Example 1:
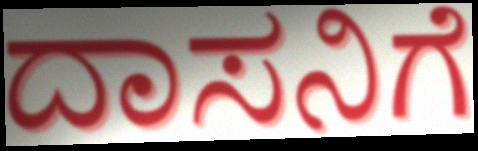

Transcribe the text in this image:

ದಾಸನಿಗೆ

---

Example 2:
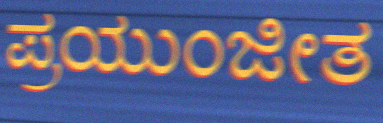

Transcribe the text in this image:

ಪ್ರಯುಂಜೀತ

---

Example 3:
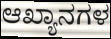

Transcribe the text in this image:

ಆಖ್ಯಾನಗಳ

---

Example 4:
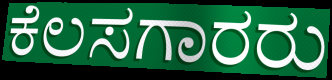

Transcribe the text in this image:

ಕೆಲಸಗಾರರು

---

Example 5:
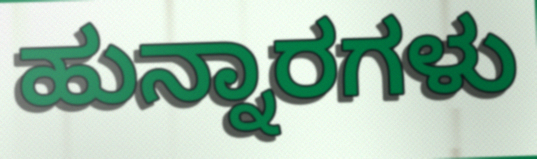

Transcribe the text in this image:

ಹುನ್ನಾರಗಳು